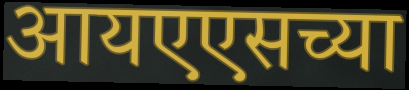
आयएएसच्या